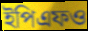
ইপিএফও